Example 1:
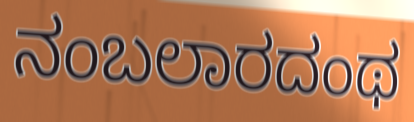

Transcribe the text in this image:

ನಂಬಲಾರದಂಥ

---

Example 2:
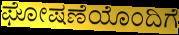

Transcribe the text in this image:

ಘೋಷಣೆಯೊಂದಿಗೆ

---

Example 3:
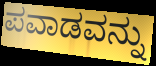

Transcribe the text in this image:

ಪವಾಡವನ್ನು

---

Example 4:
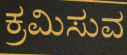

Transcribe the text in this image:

ಕ್ರಮಿಸುವ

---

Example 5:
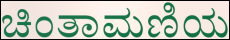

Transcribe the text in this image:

ಚಿಂತಾಮಣಿಯ